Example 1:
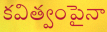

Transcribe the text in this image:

కవిత్వంపైనా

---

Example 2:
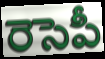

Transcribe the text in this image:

రెసెపీ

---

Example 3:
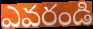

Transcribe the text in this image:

ఎవరండి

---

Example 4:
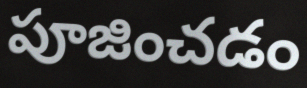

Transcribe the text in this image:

పూజించడం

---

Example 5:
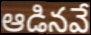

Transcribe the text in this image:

ఆడినవే